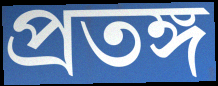
প্রতঙ্গ